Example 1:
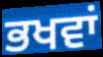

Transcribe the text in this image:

ਭਖਵਾਂ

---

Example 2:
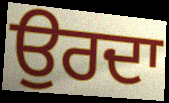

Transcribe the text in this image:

ਉਰਦਾ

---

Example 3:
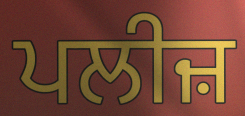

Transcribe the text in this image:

ਪਲੀਜ਼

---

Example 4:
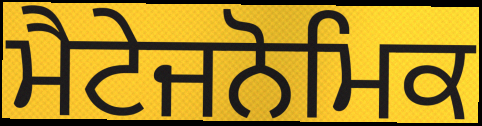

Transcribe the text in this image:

ਮੈਟੇਜਨੋਮਿਕ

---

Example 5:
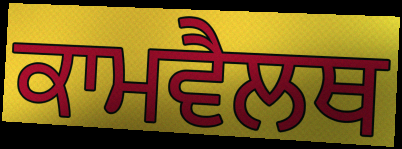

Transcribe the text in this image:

ਕਾਮਵੈਲਥ